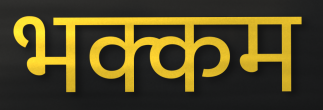
भक्कम